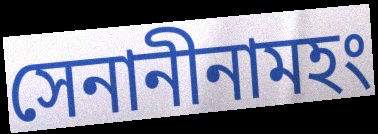
সেনানীনামহং